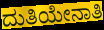
ದುತಿಯೇನಾತಿ